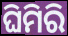
ଘିମିରି